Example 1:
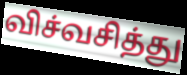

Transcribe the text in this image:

விச்வசித்து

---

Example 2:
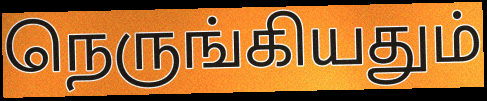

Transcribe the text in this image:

நெருங்கியதும்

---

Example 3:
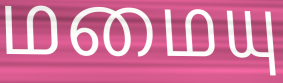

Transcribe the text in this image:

மமையு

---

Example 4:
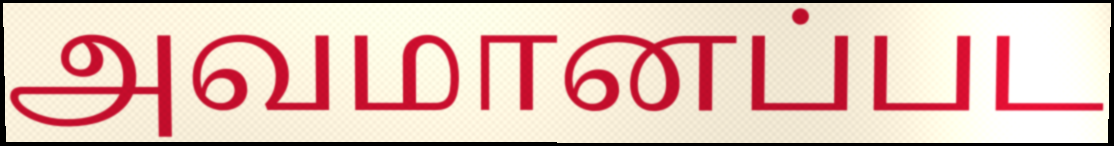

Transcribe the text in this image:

அவமானப்பட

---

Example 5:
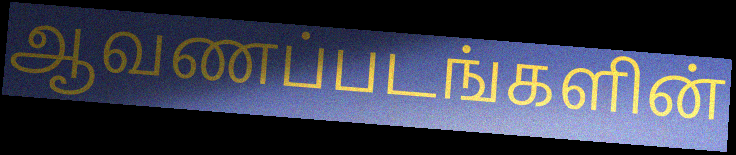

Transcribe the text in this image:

ஆவணப்படங்களின்